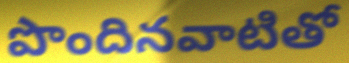
పొందినవాటితో